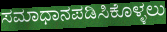
ಸಮಾಧಾನಪಡಿಸಿಕೊಳ್ಳಲು